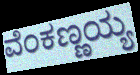
ವೆಂಕಣ್ಣಯ್ಯ